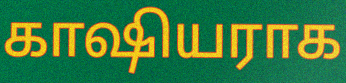
காஷியராக